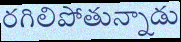
రగిలిపోతున్నాడు